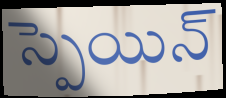
స్పెయిన్